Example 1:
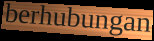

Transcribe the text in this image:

berhubungan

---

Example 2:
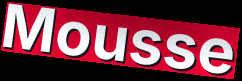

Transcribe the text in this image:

Mousse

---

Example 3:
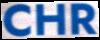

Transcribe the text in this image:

CHR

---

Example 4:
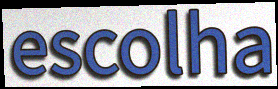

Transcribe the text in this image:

escolha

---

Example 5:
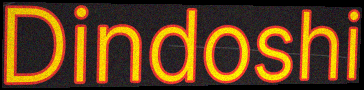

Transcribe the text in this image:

Dindoshi